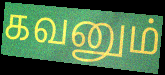
கவனும்